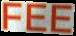
FEE